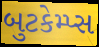
બુટકેમ્પ્સ